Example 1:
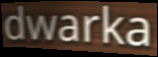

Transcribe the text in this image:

dwarka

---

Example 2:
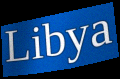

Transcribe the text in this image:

Libya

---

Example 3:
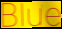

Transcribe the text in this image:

Blue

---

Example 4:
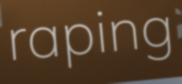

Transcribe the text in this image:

raping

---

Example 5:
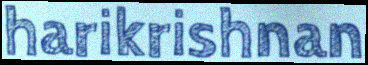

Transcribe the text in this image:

harikrishnan